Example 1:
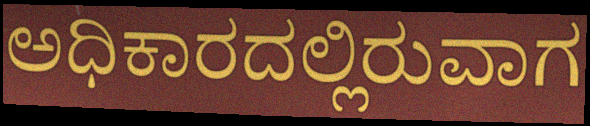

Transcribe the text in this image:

ಅಧಿಕಾರದಲ್ಲಿರುವಾಗ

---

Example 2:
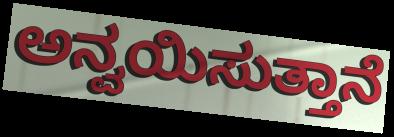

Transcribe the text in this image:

ಅನ್ವಯಿಸುತ್ತಾನೆ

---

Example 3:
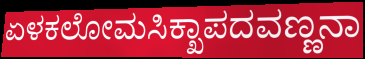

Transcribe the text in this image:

ಏಳಕಲೋಮಸಿಕ್ಖಾಪದವಣ್ಣನಾ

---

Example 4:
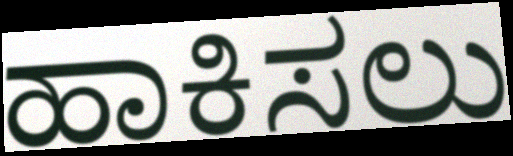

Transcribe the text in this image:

ಹಾಕಿಸಲು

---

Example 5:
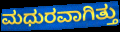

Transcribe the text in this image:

ಮಧುರವಾಗಿತ್ತು